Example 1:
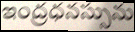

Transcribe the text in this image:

ఇంద్రధనస్సును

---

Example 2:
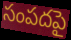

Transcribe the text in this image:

సంపదపై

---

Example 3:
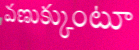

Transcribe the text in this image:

వణుక్కుంటూ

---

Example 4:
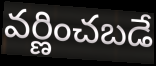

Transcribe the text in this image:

వర్ణించబడే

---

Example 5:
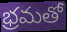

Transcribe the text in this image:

భ్రమతో